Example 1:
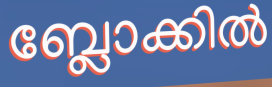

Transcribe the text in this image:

ബ്ലോക്കിൽ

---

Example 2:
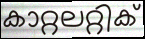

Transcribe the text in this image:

കാറ്റലറ്റിക്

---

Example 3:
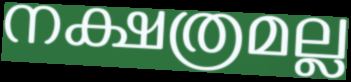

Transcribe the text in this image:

നക്ഷത്രമല്ല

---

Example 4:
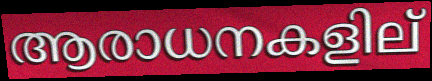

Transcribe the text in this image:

ആരാധനകളില്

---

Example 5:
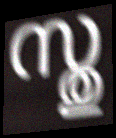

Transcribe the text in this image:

സ്തു